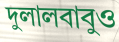
দুলালবাবুও